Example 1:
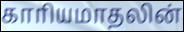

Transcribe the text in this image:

காரியமாதலின்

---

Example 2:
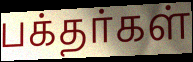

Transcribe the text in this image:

பக்தர்கள்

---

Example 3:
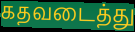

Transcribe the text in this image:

கதவடைத்து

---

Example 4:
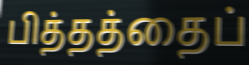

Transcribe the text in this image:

பித்தத்தைப்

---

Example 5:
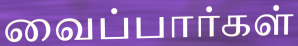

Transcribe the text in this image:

வைப்பார்கள்